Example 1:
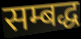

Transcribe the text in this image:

सम्बद्ध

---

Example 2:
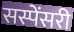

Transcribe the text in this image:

सस्पेंसरी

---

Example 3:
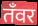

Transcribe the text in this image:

तँवर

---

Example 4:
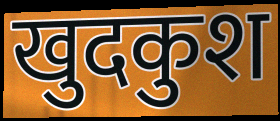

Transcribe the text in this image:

खुदकुश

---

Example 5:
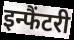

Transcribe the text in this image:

इन्फैंटरी